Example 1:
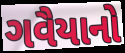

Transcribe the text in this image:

ગવૈયાનો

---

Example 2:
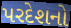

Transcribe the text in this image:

પરદેશનો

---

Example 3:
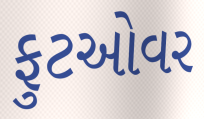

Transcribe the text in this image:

ફુટઓવર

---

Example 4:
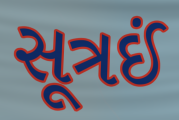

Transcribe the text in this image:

સૂત્રઈં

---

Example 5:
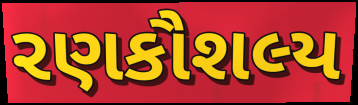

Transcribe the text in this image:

રણકૌશલ્ય